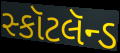
સ્કૉટલૅન્ડ